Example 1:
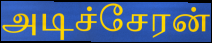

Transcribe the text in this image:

அடிச்சேரன்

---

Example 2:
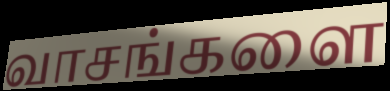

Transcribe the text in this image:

வாசங்களை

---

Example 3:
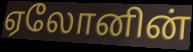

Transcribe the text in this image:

ஏலோனின்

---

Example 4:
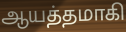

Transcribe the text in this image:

ஆயத்தமாகி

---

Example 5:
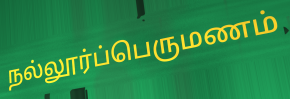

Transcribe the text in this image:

நல்லூர்ப்பெருமணம்